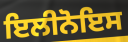
ਇਲੀਨੋਇਸ